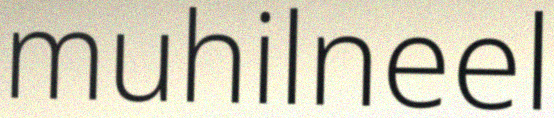
muhilneel